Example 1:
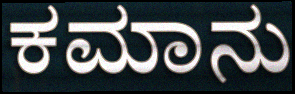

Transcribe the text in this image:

ಕಮಾನು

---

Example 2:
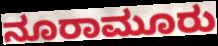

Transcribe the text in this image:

ನೂರಾಮೂರು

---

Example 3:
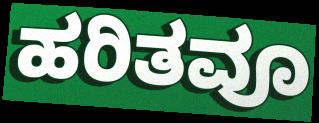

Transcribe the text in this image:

ಹರಿತವೂ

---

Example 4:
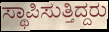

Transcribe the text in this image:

ಸ್ಥಾಪಿಸುತ್ತಿದ್ದರು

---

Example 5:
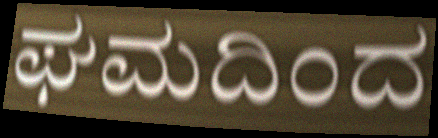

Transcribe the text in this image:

ಘಮದಿಂದ